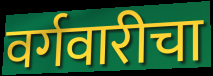
वर्गवारीचा